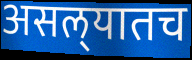
असल्यातच